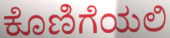
ಕೊಣಿಗೆಯಲಿ